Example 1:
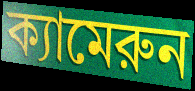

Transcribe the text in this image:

ক্যামেরুন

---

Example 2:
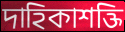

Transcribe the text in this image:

দাহিকাশক্তি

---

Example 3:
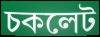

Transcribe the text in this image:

চকলেট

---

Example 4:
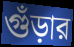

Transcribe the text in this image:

গুঁড়ার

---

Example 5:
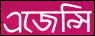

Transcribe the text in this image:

এজেন্সি